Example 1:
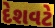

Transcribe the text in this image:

દેશવટે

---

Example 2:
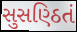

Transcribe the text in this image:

સુસણ્ઠિતં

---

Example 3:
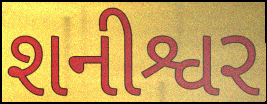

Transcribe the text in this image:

શનીશ્વર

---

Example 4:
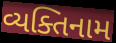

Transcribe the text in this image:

વ્યક્તિનામ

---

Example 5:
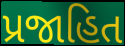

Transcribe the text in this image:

પ્રજાહિત